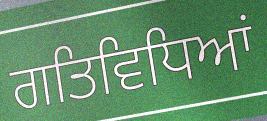
ਗਤਿਵਿਧਿਆਂ